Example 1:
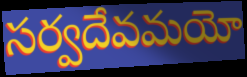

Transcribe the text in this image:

సర్వదేవమయో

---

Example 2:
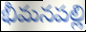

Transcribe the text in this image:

భీమనపల్లి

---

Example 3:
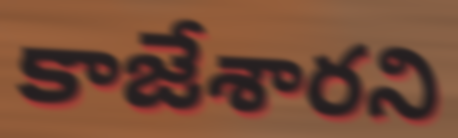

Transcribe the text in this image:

కాజేశారని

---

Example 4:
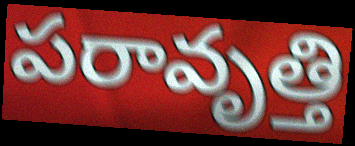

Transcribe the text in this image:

పరావృత్తి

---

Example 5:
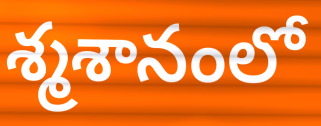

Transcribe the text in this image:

శ్మశానంలో